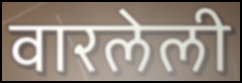
वारलेली